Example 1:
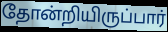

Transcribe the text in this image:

தோன்றியிருப்பார்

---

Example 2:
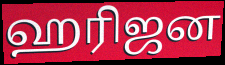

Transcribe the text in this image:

ஹரிஜன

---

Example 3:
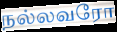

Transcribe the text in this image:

நல்லவரோ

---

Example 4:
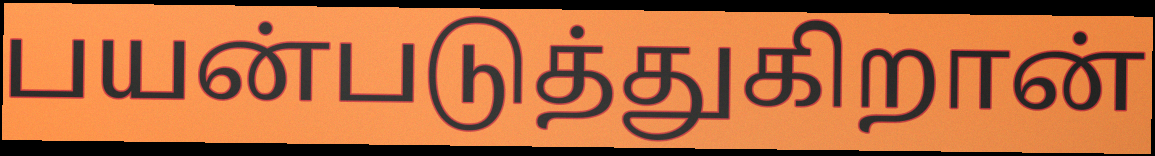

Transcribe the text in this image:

பயன்படுத்துகிறான்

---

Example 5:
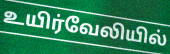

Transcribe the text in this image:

உயிர்வேலியில்